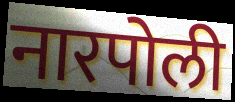
नारपोली